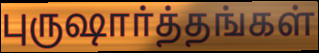
புருஷார்த்தங்கள்